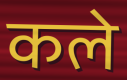
कले